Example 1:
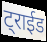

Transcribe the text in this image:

ट्राईड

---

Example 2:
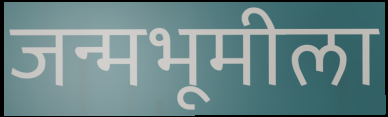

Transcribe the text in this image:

जन्मभूमीला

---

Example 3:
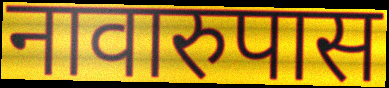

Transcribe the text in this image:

नावारुपास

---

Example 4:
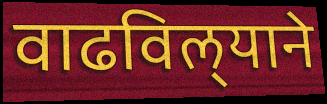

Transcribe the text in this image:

वाढविल्याने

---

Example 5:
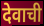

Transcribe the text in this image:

देवाची